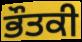
ਭੌਤਕੀ